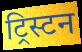
ट्रिस्टन